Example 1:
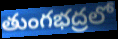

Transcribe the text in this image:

తుంగభద్రలో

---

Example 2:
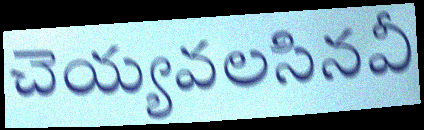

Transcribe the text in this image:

చెయ్యవలసినవీ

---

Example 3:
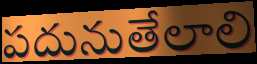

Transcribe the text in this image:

పదునుతేలాలి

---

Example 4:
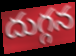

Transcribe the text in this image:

దుగ్గన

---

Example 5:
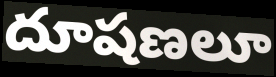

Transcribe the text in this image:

దూషణలూ